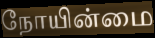
நோயின்மை